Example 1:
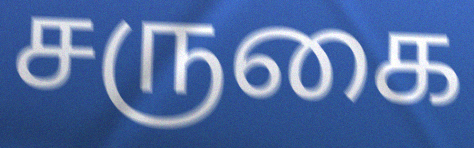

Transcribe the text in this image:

சருகை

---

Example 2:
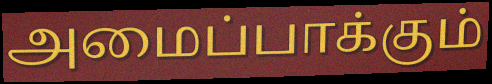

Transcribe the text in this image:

அமைப்பாக்கும்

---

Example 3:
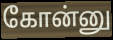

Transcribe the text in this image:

கோன்னு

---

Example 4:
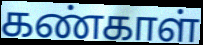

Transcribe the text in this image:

கண்காள்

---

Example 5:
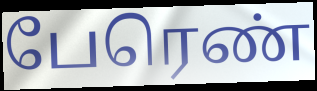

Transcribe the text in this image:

பேரெண்